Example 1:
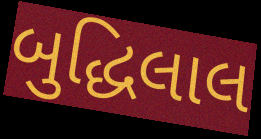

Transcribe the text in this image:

બુદ્ધિલાલ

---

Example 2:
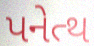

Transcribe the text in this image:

પનેત્થ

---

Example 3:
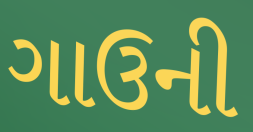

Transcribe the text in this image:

ગાઉની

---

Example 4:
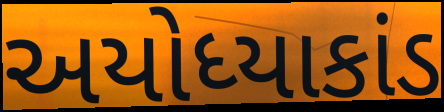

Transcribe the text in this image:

અયોધ્યાકાંડ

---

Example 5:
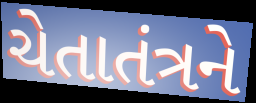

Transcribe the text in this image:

ચેતાતંત્રને